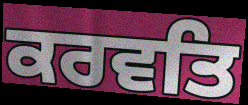
ਕਰਵਤਿ